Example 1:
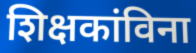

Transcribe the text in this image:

शिक्षकांविना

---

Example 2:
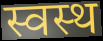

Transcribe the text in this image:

स्वस्थ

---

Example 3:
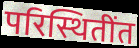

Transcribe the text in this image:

परिस्थितींत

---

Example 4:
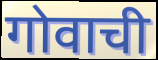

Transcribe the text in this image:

गोवाची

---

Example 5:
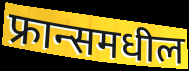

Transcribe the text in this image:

फ्रान्समधील